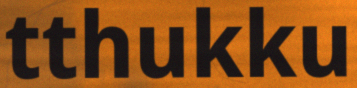
tthukku